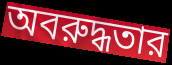
অবরুদ্ধতার